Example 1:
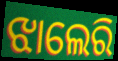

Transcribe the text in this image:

ଝାଲେରି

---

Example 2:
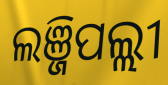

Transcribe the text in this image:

ଲଞ୍ଜିପଲ୍ଲୀ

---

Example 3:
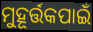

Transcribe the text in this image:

ମୁହୂର୍ତ୍ତକପାଇଁ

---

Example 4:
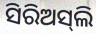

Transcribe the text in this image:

ସିରିଅସ୍‌ଲି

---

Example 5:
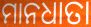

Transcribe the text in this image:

ମାନଧାତା